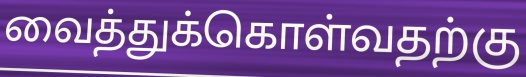
வைத்துக்கொள்வதற்கு